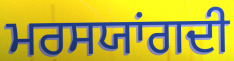
ਮਰਸਯਾਂਗਦੀ